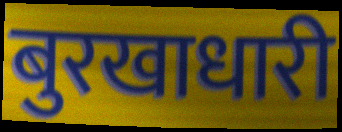
बुरखाधारी